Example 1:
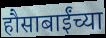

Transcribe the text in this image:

हौसाबाईंच्या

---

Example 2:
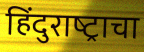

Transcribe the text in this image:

हिंदुराष्ट्राचा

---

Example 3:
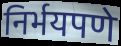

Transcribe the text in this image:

निर्भयपणे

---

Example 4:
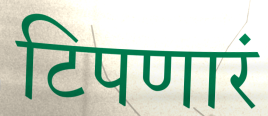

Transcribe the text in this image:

टिपणारं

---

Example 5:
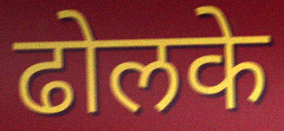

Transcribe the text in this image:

ढोलके